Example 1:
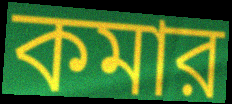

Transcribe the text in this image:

কমার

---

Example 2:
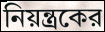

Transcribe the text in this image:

নিয়ন্ত্রকের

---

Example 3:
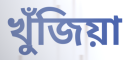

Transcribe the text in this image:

খুঁজিয়া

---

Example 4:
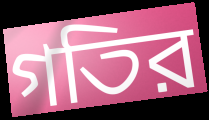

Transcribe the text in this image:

গতির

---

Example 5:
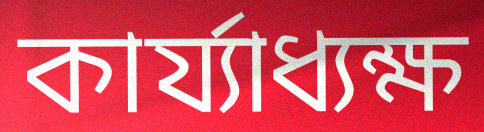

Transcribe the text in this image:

কার্য্যাধ্যক্ষ